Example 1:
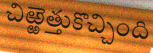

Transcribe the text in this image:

చిఱ్ఱెత్తుకొచ్చింది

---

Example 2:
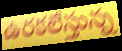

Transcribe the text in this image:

ఉరకలేస్తున్న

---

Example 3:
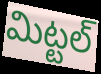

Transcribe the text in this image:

మిట్టల్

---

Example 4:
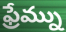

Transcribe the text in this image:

ఫ్రేమ్ను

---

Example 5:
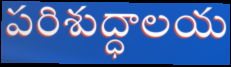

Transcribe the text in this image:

పరిశుద్ధాలయ